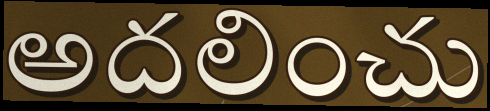
అదలించు